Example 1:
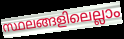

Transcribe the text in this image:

സ്ഥലങ്ങളിലെല്ലാം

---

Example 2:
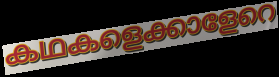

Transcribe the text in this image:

കഥകളെക്കാളേറെ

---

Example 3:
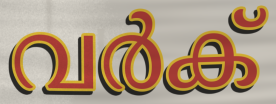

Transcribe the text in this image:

വർക്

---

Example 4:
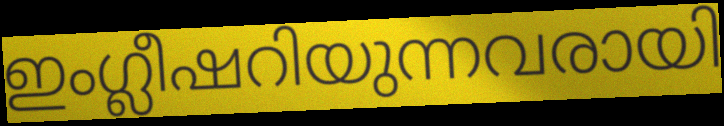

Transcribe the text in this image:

ഇംഗ്ലീഷറിയുന്നവരായി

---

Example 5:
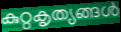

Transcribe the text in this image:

കുറ്റകൃത്യങ്ങൾ